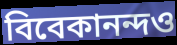
বিবেকানন্দও